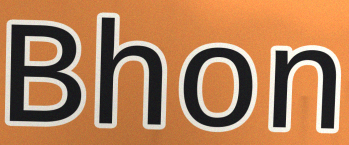
Bhon